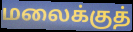
மலைக்குத்